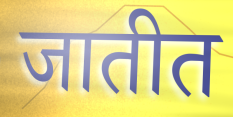
जातीत